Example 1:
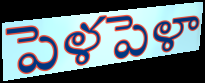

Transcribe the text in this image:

పెళపెళా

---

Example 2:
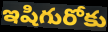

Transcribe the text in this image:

ఇషిగురోకు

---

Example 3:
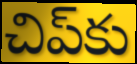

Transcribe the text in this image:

చిప్‌కు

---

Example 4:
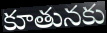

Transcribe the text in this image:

కూతునకు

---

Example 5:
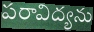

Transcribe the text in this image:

పరావిద్యను